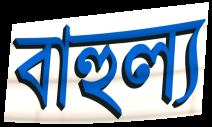
বাহুল্য